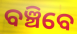
ବଞ୍ଚିବେ